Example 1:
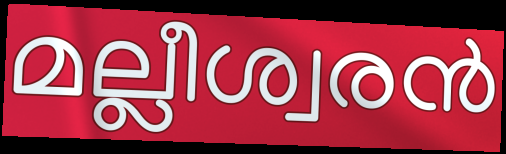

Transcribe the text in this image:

മല്ലീശ്വരൻ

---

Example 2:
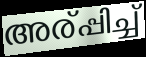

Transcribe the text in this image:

അര്പ്പിച്ച്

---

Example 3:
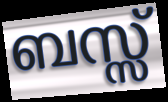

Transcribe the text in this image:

ബസ്സ്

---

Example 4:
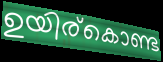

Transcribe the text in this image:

ഉയിര്കൊണ്ട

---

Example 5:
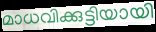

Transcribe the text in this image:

മാധവിക്കുട്ടിയായി